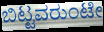
ಬಿಟ್ಟವರುಂಟೇ